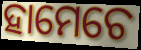
ହାମେଚେ